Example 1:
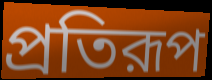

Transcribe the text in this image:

প্রতিরূপ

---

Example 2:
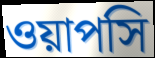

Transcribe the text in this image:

ওয়াপসি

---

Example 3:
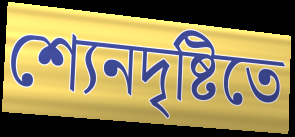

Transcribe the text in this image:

শ্যেনদৃষ্টিতে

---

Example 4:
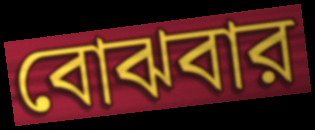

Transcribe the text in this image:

বোঝবার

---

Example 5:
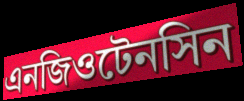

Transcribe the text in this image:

এনজিওটেনসিন